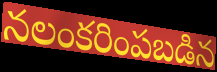
నలంకరింపబడిన